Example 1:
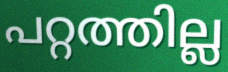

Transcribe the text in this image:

പറ്റത്തില്ല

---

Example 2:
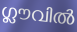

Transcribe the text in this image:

ഗ്ലൗവിൽ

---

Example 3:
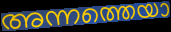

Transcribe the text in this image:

അന്നത്തെയാ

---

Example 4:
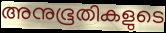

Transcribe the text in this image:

അനുഭൂതികളുടെ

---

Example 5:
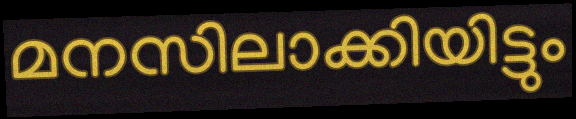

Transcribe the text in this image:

മനസിലാക്കിയിട്ടും